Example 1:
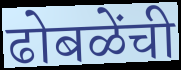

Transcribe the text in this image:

ढोबळेंची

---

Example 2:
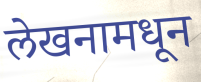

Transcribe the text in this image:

लेखनामधून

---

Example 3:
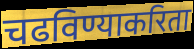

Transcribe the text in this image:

चढविण्याकरिता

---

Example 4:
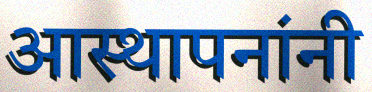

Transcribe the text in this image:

आस्थापनांनी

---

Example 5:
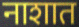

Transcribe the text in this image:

नाशात